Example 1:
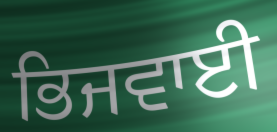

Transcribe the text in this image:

ਭਿਜਵਾਈ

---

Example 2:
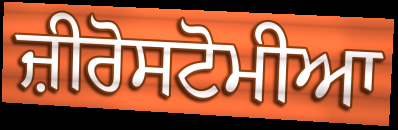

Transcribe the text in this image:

ਜ਼ੀਰੋਸਟੋਮੀਆ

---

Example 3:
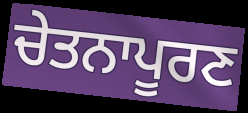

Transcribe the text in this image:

ਚੇਤਨਾਪੂਰਣ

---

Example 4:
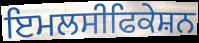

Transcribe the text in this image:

ਇਮਲਸੀਫਿਕੇਸ਼ਨ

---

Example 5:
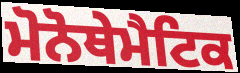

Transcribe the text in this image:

ਮੋਨੋਥੇਮੈਟਿਕ